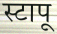
स्टापू